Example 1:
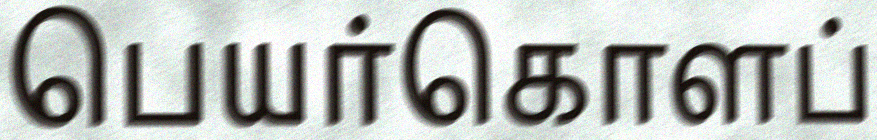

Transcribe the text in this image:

பெயர்கொளப்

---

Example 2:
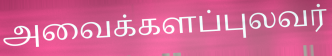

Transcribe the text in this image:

அவைக்களப்புலவர்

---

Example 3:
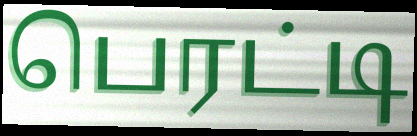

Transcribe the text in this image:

பெரட்டி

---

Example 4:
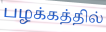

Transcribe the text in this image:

பழக்கத்தில்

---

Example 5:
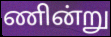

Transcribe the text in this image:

ணின்று